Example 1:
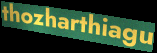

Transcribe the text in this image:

thozharthiagu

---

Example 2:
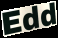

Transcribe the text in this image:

Edd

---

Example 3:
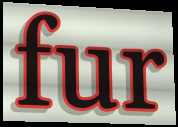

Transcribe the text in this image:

fur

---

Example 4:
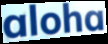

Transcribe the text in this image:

aloha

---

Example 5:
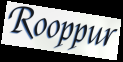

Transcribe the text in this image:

Rooppur